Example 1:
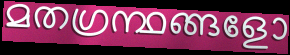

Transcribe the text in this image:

മതഗ്രന്ഥങ്ങളോ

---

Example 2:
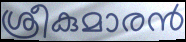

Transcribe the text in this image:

ശ്രീകുമാരൻ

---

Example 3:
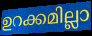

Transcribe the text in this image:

ഉറക്കമില്ലാ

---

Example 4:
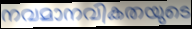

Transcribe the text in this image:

നവമാനവികതയുടെ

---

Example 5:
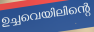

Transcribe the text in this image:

ഉച്ചവെയിലിന്റെ